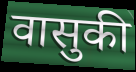
वासुकी